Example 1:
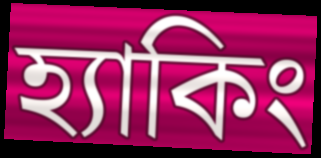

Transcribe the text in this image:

হ্যাকিং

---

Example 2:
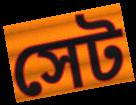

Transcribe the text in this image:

সেট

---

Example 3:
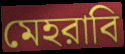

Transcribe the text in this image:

মেহরাবি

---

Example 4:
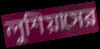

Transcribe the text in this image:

লুশিয়াসের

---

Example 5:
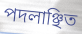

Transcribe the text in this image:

পদলাঞ্ছিত